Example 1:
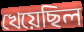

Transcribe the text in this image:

খেয়েছিল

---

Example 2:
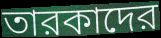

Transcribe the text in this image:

তারকাদের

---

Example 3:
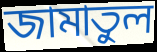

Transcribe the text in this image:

জামাতুল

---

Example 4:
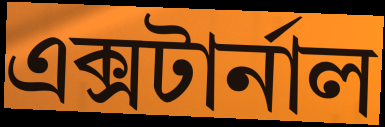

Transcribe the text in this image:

এক্সটার্নাল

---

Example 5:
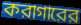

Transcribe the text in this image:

করাগারের